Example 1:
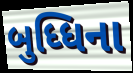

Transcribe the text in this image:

બુધ્ધિના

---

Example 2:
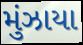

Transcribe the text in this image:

મુંઝાયા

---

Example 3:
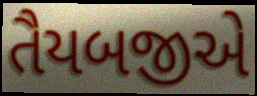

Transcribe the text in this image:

તૈયબજીએ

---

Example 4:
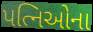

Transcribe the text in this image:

પત્નિઓના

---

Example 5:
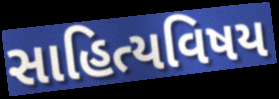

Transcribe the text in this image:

સાહિત્યવિષય